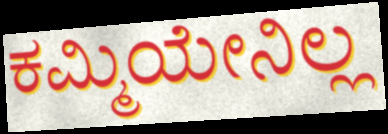
ಕಮ್ಮಿಯೇನಿಲ್ಲ